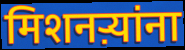
मिशनऱ्‍यांना